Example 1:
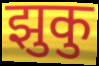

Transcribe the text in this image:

झुकु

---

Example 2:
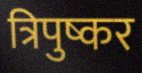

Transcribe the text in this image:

त्रिपुष्कर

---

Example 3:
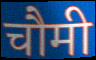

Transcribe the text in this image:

चौमी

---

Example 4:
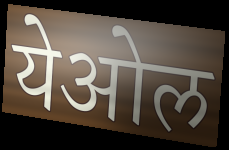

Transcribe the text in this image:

येओल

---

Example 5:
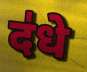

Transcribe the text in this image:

द॑धे